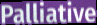
Palliative